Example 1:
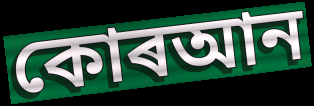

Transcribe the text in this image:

কোৰআন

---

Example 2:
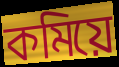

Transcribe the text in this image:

কমিয়ে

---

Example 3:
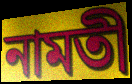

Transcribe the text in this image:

নামতী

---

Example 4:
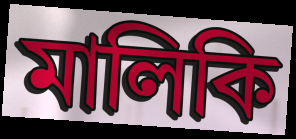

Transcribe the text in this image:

মালিকি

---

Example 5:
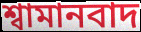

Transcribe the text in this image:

শ্বামানবাদ